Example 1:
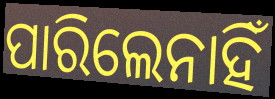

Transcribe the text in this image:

ପାରିଲେନାହିଁ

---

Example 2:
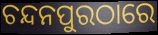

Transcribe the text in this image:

ଚନ୍ଦନପୁରଠାରେ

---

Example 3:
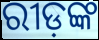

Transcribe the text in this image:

ରୀଡ଼ଙ୍କ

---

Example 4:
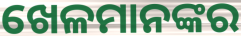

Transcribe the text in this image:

ଖେଳମାନଙ୍କର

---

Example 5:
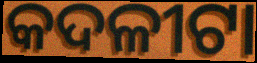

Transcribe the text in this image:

କଦଳୀଟା